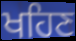
ਖਹਿਣ